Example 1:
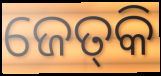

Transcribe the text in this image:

ଜେତ୍‌କି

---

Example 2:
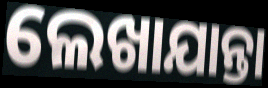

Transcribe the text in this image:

ଲେଖାଯାନ୍ତା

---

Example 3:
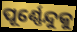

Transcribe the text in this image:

ପୂର୍ଣ୍ଣେନ୍ଦୁକୁ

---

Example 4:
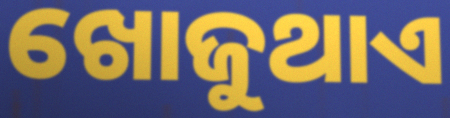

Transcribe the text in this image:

ଖୋଜୁଥାଏ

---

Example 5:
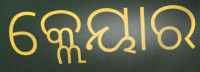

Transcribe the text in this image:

କ୍ଲେୟାର